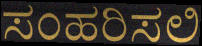
ಸಂಹರಿಸಲಿ